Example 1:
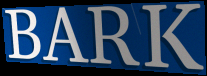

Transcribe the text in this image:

BARK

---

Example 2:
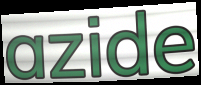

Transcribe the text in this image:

azide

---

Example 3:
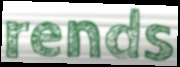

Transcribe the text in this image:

rends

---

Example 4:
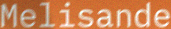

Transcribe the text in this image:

Melisande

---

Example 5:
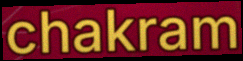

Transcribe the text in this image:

chakram